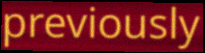
previously